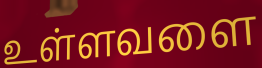
உள்ளவளை